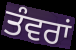
ਤੰਵਰਾਂ